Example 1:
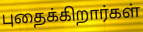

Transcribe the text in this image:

புதைக்கிறார்கள்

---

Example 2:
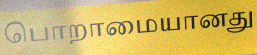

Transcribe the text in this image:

பொறாமையானது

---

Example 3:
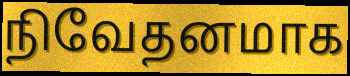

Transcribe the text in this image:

நிவேதனமாக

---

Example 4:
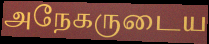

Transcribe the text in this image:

அநேகருடைய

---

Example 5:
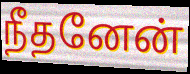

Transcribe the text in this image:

நீதனேன்